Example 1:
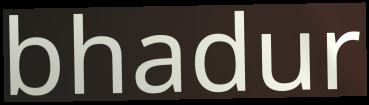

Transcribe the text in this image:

bhadur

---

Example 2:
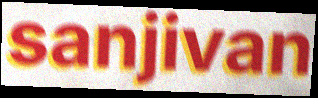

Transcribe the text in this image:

sanjivan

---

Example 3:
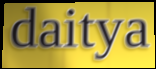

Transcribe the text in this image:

daitya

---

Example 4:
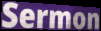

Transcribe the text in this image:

Sermon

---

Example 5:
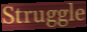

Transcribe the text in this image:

Struggle